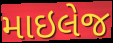
માઇલેજ